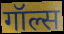
गॉल्स